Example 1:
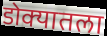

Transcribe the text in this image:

डोक्यातला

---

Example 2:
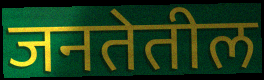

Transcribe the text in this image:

जनतेतील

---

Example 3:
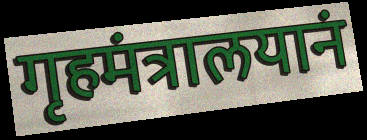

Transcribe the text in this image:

गृहमंत्रालयानं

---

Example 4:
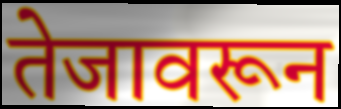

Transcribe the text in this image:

तेजावरून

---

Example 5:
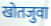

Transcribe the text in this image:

खोतजुवा